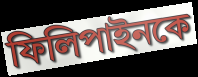
ফিলিপাইনকে